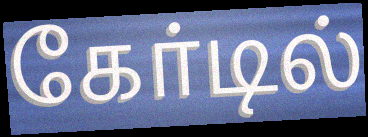
கேர்டில்